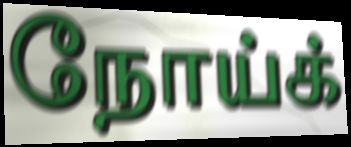
நோய்க்